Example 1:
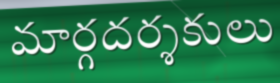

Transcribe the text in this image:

మార్గదర్శకులు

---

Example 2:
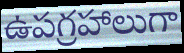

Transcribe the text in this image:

ఉపగ్రహాలుగా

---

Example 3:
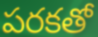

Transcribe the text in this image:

పరకతో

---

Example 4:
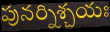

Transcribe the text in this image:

పునర్నిశ్చయః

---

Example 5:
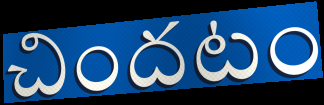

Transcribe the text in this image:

చిందటం